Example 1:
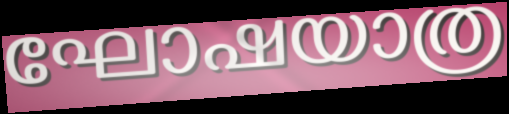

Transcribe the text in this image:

ഘോഷയാത്ര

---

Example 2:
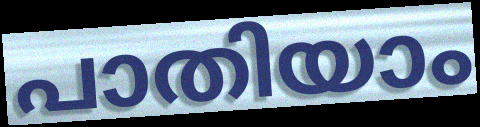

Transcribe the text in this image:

പാതിയാം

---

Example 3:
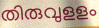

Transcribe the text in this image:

തിരുവുളളം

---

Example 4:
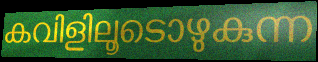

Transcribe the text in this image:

കവിളിലൂടൊഴുകുന്ന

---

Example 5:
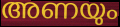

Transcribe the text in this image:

അണയും